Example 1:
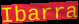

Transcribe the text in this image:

Ibarra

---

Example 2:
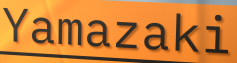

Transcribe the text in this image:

Yamazaki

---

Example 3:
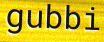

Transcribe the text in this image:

gubbi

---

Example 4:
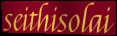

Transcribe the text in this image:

seithisolai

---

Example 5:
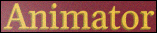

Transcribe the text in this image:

Animator